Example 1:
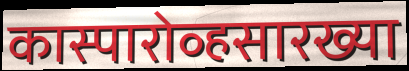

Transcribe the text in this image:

कास्पारोव्हसारख्या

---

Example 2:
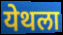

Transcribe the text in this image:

येथला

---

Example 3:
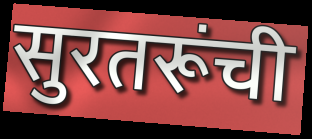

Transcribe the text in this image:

सुरतरूंची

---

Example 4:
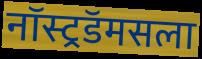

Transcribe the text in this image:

नॉस्ट्रडॅमसला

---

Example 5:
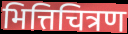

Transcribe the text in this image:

भित्तिचित्रण